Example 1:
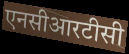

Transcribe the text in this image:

एनसीआरटीसी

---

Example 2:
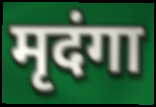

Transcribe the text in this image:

मृदंगा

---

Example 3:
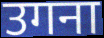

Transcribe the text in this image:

उगना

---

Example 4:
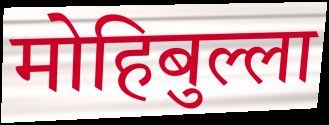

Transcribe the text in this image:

मोहिबुल्ला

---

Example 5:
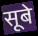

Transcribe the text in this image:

सूबे